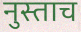
नुस्ताच